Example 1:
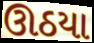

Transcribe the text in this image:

ઊઠયા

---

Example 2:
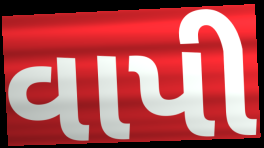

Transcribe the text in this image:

વાપી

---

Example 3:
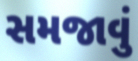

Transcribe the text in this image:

સમજાવું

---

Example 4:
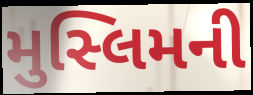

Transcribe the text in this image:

મુસ્લિમની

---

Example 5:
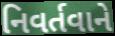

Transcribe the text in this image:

નિવર્તવાને